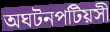
অঘটনপটিয়সী